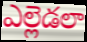
ఎల్లెడలా